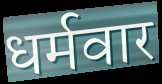
धर्मवार